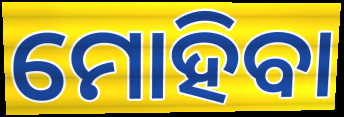
ମୋହିବା